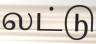
லட்டு